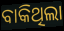
ବାକିଥିଲା